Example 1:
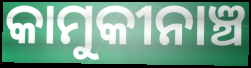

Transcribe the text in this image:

କାମୁକୀନାଞ୍ଚ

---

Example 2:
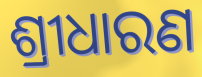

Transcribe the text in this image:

ଶ୍ରୀଧାରଣ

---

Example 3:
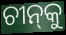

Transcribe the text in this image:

ଚୀନ୍‌କୁ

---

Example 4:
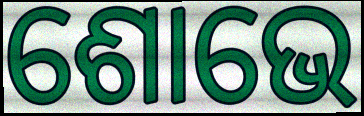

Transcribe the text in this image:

ଶୋଭେ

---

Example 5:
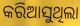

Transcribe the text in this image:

କରିଆସୁଥିଲା